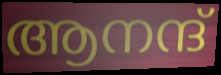
ആനന്ദ്